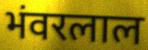
भंवरलाल